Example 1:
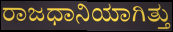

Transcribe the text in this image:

ರಾಜಧಾನಿಯಾಗಿತ್ತು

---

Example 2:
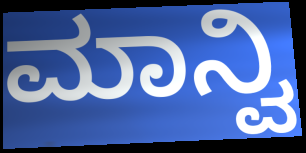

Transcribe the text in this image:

ಮಾನ್ವಿ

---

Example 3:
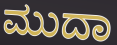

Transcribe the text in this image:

ಮುದಾ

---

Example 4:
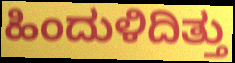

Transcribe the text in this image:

ಹಿಂದುಳಿದಿತ್ತು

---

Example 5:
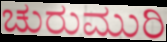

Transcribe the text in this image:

ಚುರುಮುರಿ